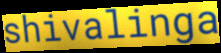
shivalinga